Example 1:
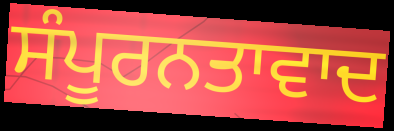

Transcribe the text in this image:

ਸੰਪੂਰਨਤਾਵਾਦ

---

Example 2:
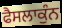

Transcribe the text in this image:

ਫੈਸਲਾਕੁੰਨ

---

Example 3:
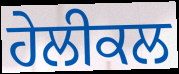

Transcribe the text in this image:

ਹੇਲੀਕਲ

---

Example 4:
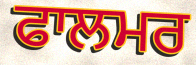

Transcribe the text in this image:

ਫਾਲਮਰ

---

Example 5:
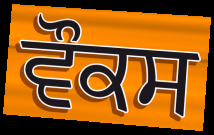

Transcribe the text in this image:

ਵੌਕਸ